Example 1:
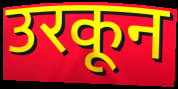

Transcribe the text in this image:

उरकून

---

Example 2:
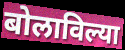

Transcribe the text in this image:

बोलाविल्या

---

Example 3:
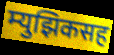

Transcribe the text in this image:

म्युझिकसह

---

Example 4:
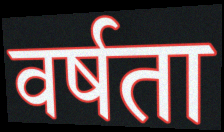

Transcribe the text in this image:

वर्षता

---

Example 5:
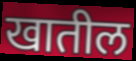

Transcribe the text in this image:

खातील